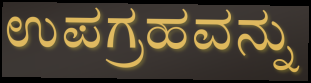
ಉಪಗ್ರಹವನ್ನು